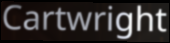
Cartwright